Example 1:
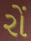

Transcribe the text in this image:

રોં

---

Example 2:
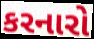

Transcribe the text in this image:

કરનારો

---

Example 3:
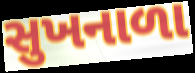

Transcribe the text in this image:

સુખનાળા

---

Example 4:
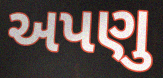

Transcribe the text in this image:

અપણુ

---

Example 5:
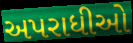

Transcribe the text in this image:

અપરાધીઓ